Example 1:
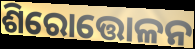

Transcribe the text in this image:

ଶିରୋତ୍ତୋଳନ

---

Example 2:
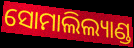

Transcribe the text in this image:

ସୋମାଲିଲ୍ୟାଣ୍ଡ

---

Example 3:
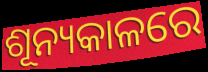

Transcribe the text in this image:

ଶୂନ୍ୟକାଳରେ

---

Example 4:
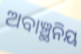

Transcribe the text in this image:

ଅବାଞ୍ଛନିୟ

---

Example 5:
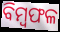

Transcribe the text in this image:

ବିମ୍ୱଫଳ